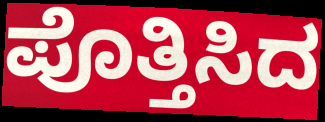
ಪೊತ್ತಿಸಿದ